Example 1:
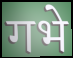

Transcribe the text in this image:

गभे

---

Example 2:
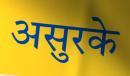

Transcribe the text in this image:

असुरके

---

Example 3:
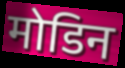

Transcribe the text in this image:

मोडिन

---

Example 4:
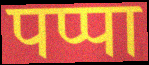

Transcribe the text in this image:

पप्‍पा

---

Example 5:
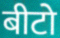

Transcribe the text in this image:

बीटो